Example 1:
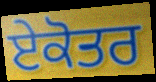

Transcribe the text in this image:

ਏਕੋਤਰ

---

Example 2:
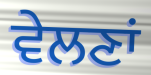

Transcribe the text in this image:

ਵੇਲਣਾਂ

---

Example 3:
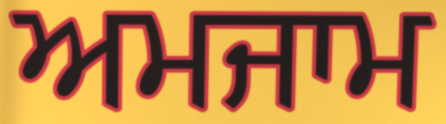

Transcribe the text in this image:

ਅਮਜਾਮ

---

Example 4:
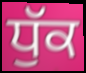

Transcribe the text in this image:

ਧੁੱਕ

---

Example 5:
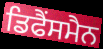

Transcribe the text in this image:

ਡਿਫੈਂਸਮੈਨ